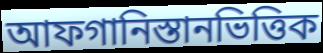
আফগানিস্তানভিত্তিক